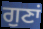
ਗੁਣਾਂ